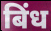
बिंध